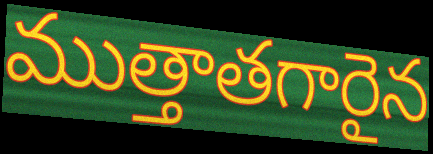
ముత్తాతగారైన